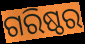
ଗରିଷ୍ଠର